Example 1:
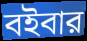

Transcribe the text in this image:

বইবার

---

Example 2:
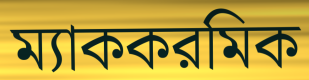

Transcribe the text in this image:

ম্যাককরমিক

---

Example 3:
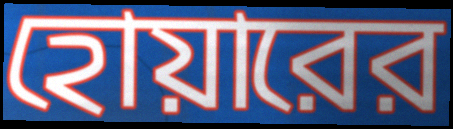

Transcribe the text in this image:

হোয়ারের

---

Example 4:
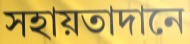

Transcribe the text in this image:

সহায়তাদানে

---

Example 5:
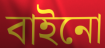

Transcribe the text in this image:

বাইনো